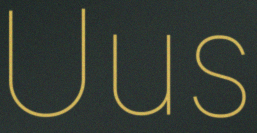
Uus